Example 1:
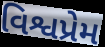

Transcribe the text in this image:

વિશ્વપ્રેમ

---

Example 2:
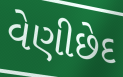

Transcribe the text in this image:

વેણીછેદ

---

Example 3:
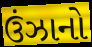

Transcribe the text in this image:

ઉંઝાનો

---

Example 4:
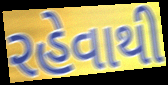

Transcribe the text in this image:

રહેવાથી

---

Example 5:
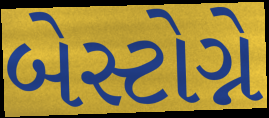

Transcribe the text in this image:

બેસ્ટોગ્ને